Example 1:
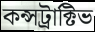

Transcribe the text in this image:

কন্সট্রাক্টিভ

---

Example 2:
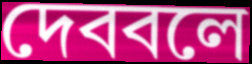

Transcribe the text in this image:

দেববলে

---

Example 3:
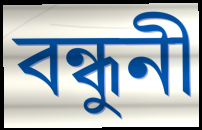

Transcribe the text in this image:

বন্ধুনী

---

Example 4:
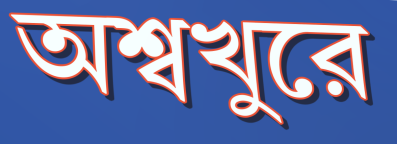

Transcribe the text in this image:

অশ্বখুরে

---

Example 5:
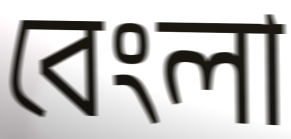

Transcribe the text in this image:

বেংলা